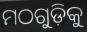
ମଠଗୁଡ଼ିକୁ